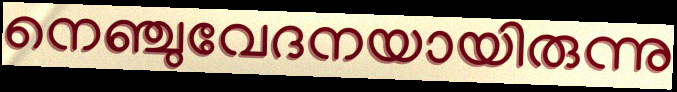
നെഞ്ചുവേദനയായിരുന്നു